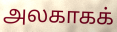
அலகாகக்